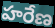
హరేణ